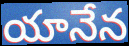
యానేన